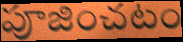
పూజించటం